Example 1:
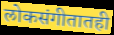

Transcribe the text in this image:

लोकसंगीतातही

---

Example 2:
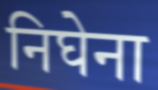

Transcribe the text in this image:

निघेना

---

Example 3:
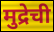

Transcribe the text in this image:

मुद्रेची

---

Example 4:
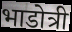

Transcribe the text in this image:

भाडोत्री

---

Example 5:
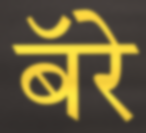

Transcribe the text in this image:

बॅरे